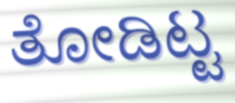
ತೋಡಿಟ್ಟ